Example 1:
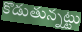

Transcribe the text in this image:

కొడుతున్నట్టు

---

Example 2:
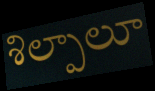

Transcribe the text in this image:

శిల్పాలూ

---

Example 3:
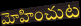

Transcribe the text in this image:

మోహించుట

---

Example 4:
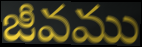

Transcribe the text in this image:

జీవము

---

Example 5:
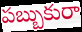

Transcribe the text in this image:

పబ్బుకురా